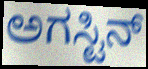
ಅಗಸ್ಟಿನ್